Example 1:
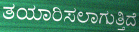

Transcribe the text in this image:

ತಯಾರಿಸಲಾಗುತ್ತಿದೆ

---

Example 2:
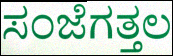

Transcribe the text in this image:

ಸಂಜೆಗತ್ತಲ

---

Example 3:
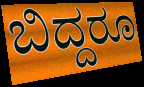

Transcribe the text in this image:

ಬಿದ್ದರೂ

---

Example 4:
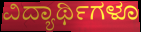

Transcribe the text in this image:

ವಿದ್ಯಾರ್ಥಿಗಳೂ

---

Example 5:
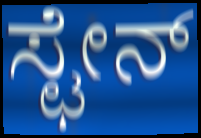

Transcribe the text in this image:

ಸ್ಟೇನ್